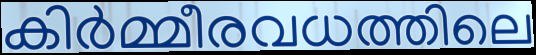
കിർമ്മീരവധത്തിലെ